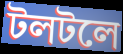
টলটলে